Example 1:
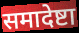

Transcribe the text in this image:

समादेष्टा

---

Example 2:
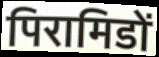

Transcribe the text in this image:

पिरामिडों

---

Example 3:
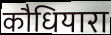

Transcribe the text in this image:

कौधियारा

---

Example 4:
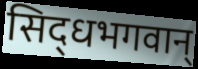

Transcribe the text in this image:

सिद्धभगवान्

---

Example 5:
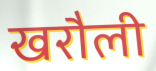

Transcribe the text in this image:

खरौली